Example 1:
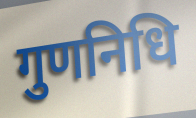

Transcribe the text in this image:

गुणनिधि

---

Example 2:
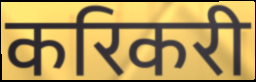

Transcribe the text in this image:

करिकरी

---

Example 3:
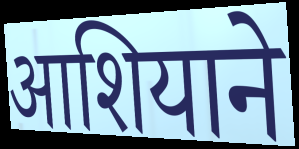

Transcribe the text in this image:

आशियाने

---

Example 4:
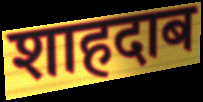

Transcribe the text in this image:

शाहदाब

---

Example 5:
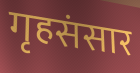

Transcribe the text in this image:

गृहसंसार